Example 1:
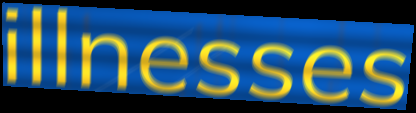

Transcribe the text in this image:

illnesses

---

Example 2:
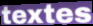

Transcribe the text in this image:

textes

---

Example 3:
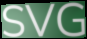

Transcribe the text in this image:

SVG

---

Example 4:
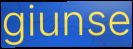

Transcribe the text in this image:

giunse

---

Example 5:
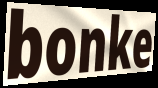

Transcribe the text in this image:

bonke